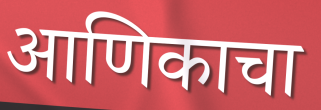
आणिकाचा